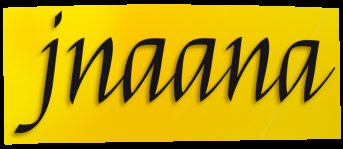
jnaana